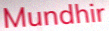
Mundhir